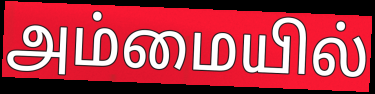
அம்மையில்